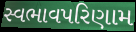
સ્વભાવપરિણામ